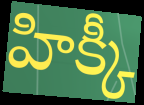
హిక్కీ